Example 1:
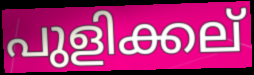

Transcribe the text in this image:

പുളിക്കല്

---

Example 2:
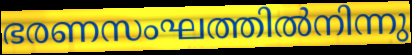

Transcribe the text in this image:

ഭരണസംഘത്തിൽനിന്നു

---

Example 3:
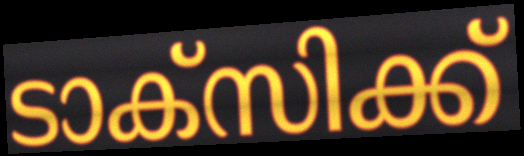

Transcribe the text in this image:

ടാക്സിക്ക്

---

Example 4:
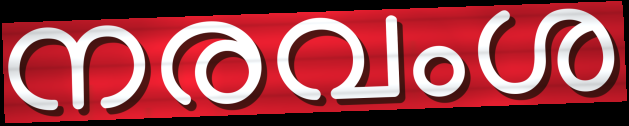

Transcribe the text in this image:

നരവംശ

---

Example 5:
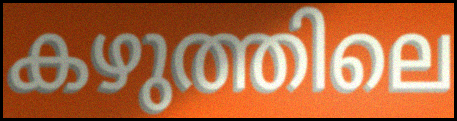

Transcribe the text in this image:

കഴുത്തിലെ